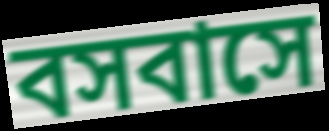
বসবাসে